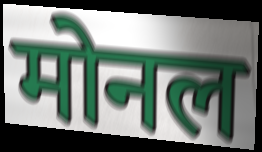
मोनल